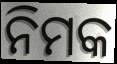
ନିମକ